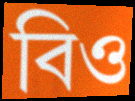
বিও